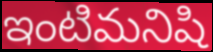
ఇంటిమనిషి